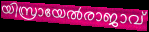
യിസ്രായേൽരാജാവ്